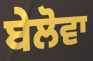
ਬੇਲੋਵਾ